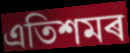
এতিশমৰ